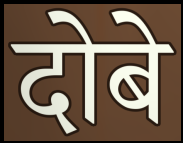
दोबे